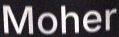
Moher